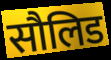
सौलिड